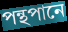
পন্থপানে